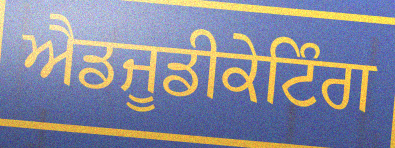
ਐਡਜੂਡੀਕੇਟਿੰਗ